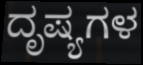
ದೃಷ್ಯಗಳ